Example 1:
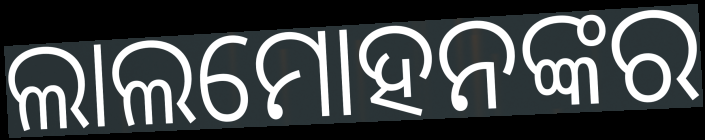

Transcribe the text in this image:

ଲାଲମୋହନଙ୍କର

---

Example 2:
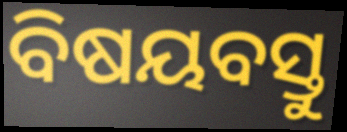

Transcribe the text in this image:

ବିଷୟବସ୍ତୁ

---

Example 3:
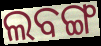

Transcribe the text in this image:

ଲବଙ୍ଗ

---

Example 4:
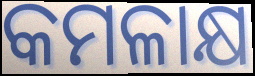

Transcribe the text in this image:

କମଳାକ୍ଷ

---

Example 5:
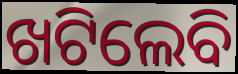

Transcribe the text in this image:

ଖଟିଲେବି